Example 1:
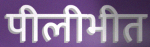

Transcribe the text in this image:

पीलीभीत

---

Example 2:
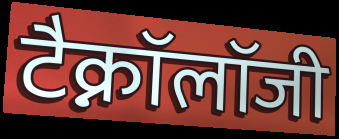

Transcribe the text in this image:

टैक्नॉलॉजी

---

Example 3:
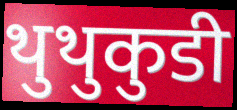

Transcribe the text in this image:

थुथुकुडी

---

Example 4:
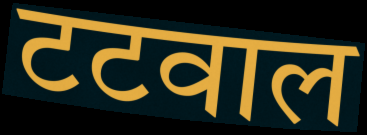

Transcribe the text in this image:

टटवाल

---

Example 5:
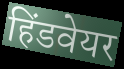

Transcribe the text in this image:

हिंडवेयर